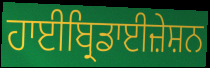
ਹਾਈਬ੍ਰਿਡਾਈਜ਼ੇਸ਼ਨ